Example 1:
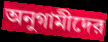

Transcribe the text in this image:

অনুগামীদের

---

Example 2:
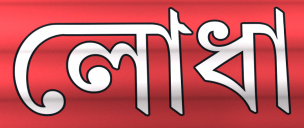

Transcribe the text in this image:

লোধা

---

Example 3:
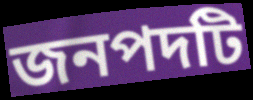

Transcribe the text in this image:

জনপদটি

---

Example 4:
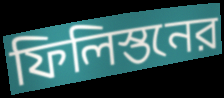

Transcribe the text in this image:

ফিলিস্তনের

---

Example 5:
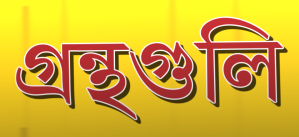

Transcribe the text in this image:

গ্রন্থগুলি